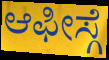
ಆಫೀಸ್ಗೆ